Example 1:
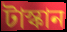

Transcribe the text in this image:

টাস্কান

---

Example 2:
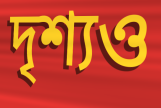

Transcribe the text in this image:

দৃশ্যও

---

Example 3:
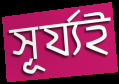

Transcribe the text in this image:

সূৰ্য্যই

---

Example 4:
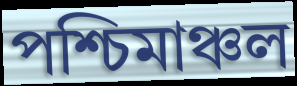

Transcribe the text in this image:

পশ্চিমাঞ্চল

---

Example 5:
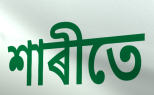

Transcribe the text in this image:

শাৰীতে